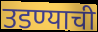
उडण्याची